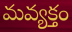
మవ్యక్తం